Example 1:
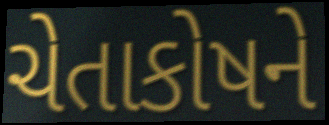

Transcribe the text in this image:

ચેતાકોષને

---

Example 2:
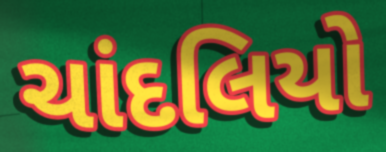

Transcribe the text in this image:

ચાંદલિયો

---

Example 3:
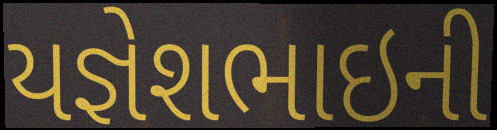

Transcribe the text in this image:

યજ્ઞેશભાઇની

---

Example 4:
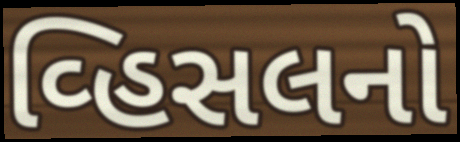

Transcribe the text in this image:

વ્હિસલનો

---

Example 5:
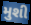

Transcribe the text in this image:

મુશી